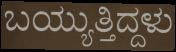
ಬಯ್ಯುತ್ತಿದ್ದಳು